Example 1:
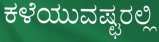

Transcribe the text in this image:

ಕಳೆಯುವಷ್ಟರಲ್ಲಿ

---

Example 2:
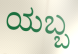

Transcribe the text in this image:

ಯಬ್ಬ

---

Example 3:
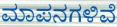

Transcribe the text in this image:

ಮಾಪನಗಳಿವೆ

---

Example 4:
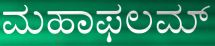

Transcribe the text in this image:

ಮಹಾಫಲಮ್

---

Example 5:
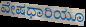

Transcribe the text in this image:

ವೇಷಧಾರಿಯೂ